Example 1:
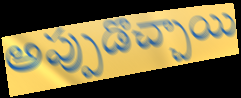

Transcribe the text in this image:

అప్పుడొచ్చాయి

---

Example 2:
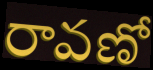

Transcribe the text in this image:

రావణో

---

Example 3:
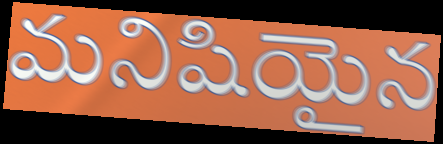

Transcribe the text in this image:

మనిషియైన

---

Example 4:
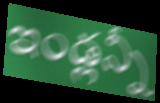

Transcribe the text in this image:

ఇండ్లన్నీ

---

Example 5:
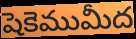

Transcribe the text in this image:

షెకెముమీద